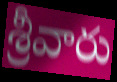
శ్రీవారు